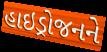
હાઇડ્રોજનને